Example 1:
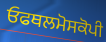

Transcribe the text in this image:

ਓਫਥਲਮੋਸਕੋਪੀ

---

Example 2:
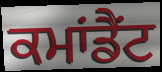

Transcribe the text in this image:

ਕਮਾਂਡੈਂਟ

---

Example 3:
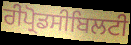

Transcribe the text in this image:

ਰੀਪ੍ਰੋਡਸੀਬਿਲਟੀ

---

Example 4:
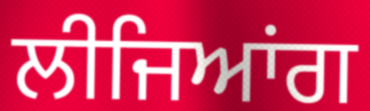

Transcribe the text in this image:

ਲੀਜਿਆਂਗ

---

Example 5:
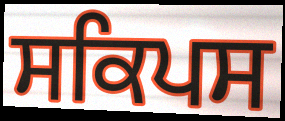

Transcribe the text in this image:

ਸਕਿਪਸ